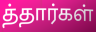
த்தார்கள்